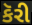
કૅરી